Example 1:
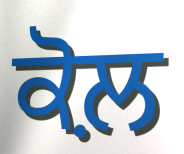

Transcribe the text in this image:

ਕੋਲ਼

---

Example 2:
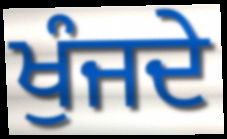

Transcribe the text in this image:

ਖੁੰਜਦੇ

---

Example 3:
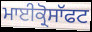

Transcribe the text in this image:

ਮਾਈਕ੍ਰੋਸਾੱਫਟ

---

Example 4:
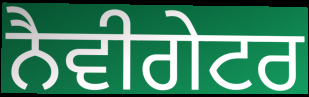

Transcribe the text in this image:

ਨੈਵੀਗੇਟਰ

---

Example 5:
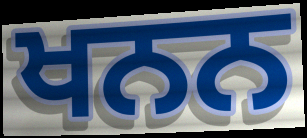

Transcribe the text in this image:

ਖਨਨ